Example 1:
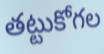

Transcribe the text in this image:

తట్టుకోగల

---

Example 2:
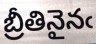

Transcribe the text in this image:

బ్రీతినైనఁ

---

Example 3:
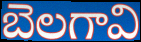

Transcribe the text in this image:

బెలగావి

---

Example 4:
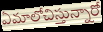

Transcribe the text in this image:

ఏమాలోచిస్తున్నారో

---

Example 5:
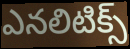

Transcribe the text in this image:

ఎనలిటిక్స్